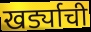
खर्ड्याची